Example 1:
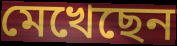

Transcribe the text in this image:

মেখেছেন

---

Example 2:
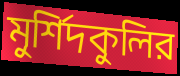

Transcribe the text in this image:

মুর্শিদকুলির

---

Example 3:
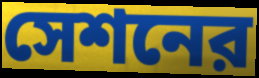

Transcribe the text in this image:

সেশনের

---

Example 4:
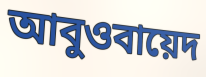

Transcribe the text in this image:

আবুওবায়েদ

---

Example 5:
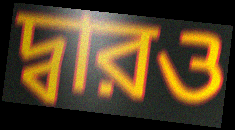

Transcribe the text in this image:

দ্বারও